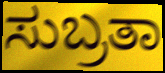
ಸುಬ್ರತಾ